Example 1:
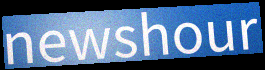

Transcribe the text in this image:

newshour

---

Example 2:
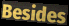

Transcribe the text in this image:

Besides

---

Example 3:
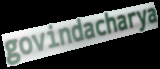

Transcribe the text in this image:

govindacharya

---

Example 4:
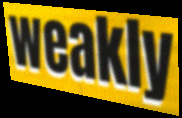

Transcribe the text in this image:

weakly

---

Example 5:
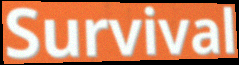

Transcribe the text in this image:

Survival